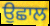
ਉਛਾਲ